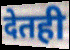
देतही